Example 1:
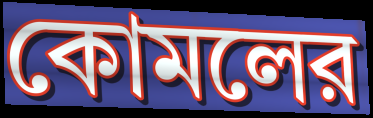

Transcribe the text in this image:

কোমলের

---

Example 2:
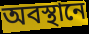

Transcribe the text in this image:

অবস্থানে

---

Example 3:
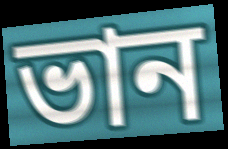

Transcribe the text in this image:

ভান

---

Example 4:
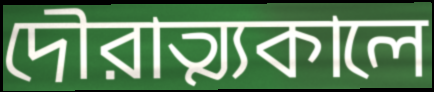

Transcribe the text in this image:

দৌরাত্ম্যকালে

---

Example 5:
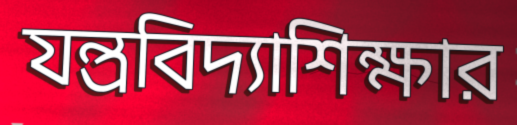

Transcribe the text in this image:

যন্ত্রবিদ্যাশিক্ষার